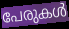
പേരുകൾ